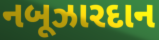
નબૂઝારદાન